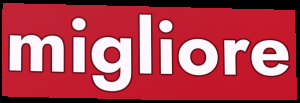
migliore